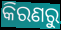
କିରଣରୁ